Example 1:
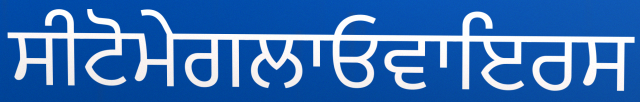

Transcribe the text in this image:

ਸੀਟੋਮੇਗਲਾਓਵਾਇਰਸ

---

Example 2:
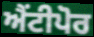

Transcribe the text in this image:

ਐਂਟੀਪੋਰ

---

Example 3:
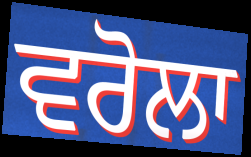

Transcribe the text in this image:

ਵਰੋਲਾ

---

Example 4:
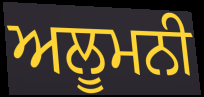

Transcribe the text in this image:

ਅਲੂਮਨੀ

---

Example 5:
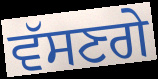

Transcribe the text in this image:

ਵੱਸਣਗੇ